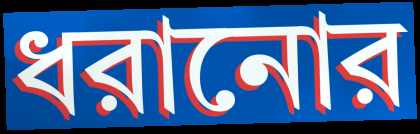
ধরানোর